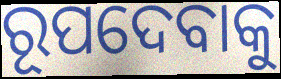
ରୂପଦେବାକୁ